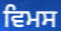
ਵਿਮਸ